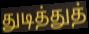
துடித்துத்